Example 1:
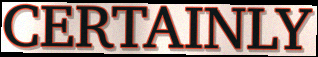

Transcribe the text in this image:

CERTAINLY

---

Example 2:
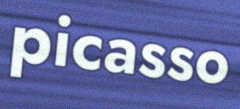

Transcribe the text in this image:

picasso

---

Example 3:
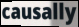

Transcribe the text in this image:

causally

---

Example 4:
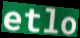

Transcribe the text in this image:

etlo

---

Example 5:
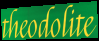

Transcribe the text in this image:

theodolite